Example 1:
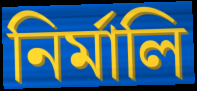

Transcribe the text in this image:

নিৰ্মালি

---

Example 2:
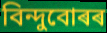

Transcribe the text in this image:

বিন্দুবোৰৰ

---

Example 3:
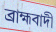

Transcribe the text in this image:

ব্ৰাহ্মবাদী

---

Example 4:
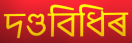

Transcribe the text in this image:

দণ্ডবিধিৰ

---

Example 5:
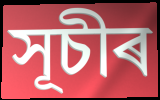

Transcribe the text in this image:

সূচীৰ